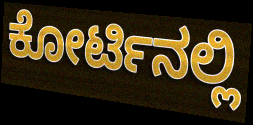
ಕೋರ್ಟಿನಲ್ಲಿ